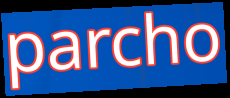
parcho